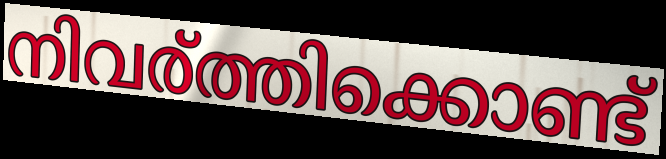
നിവര്ത്തിക്കൊണ്ട്